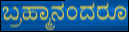
ಬ್ರಹ್ಮಾನಂದರೂ